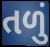
તળું